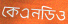
কেএনডিও